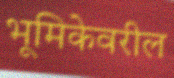
भूमिकेवरील